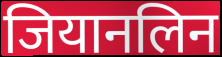
जियानलिन